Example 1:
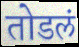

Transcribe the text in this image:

तोडलं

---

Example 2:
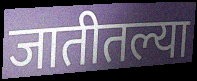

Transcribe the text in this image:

जातीतल्या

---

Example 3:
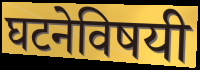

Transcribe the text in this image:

घटनेविषयी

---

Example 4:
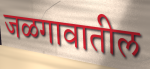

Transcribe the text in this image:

जळगावातील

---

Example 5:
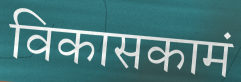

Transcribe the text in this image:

विकासकामं